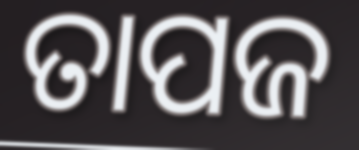
ତାପଜ